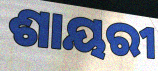
ଶାୟରୀ